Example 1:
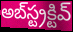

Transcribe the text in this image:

అబ్‌స్ట్రక్టివ్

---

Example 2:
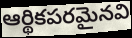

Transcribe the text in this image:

ఆర్థికపరమైనవి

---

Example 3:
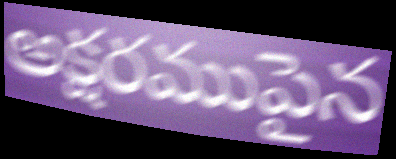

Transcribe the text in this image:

అక్షరముపైన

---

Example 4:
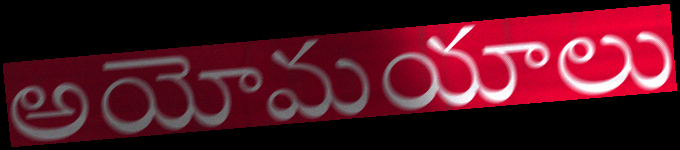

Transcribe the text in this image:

అయోమయాలు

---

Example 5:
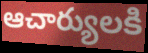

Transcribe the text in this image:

ఆచార్యులకి